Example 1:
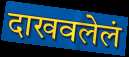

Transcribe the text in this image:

दाखवलेलं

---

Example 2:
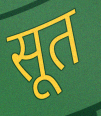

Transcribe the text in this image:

सूत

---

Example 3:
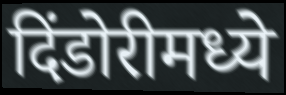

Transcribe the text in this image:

दिंडोरीमध्ये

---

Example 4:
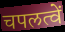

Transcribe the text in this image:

चपलत्वें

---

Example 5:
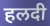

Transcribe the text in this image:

हलदी